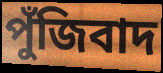
পুঁজিবাদ